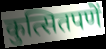
कुत्सितपणें